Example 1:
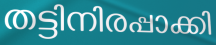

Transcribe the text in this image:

തട്ടിനിരപ്പാക്കി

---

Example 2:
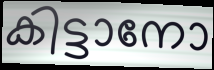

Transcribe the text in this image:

കിട്ടാനോ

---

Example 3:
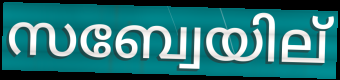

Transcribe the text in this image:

സബ്വേയില്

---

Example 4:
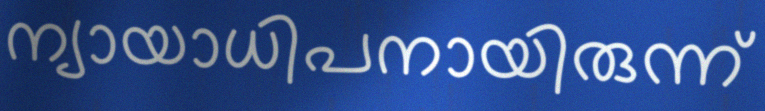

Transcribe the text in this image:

ന്യായാധിപനായിരുന്ന്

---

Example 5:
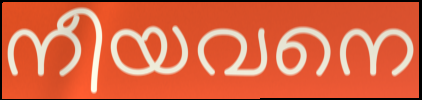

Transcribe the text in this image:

നീയവനെ